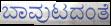
ಬಾವುಟದಂತೆ